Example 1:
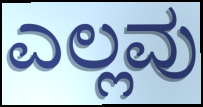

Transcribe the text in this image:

ಎಲ್ಲವು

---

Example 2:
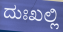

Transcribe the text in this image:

ದುಃಖಲ್ಲಿ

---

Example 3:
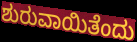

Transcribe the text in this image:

ಶುರುವಾಯಿತೆಂದು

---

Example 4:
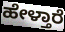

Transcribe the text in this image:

ಹೇಳ್ತಾರೆ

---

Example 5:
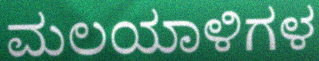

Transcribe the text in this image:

ಮಲಯಾಳಿಗಳ